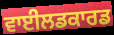
ਵਾਈਲਡਕਾਰਡ